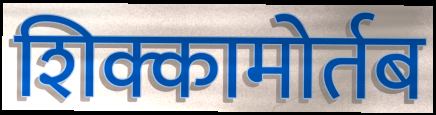
शिक्कामोर्तब